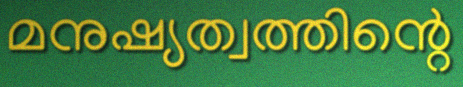
മനുഷ്യത്വത്തിന്റെ